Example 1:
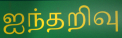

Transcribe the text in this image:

ஐந்தறிவு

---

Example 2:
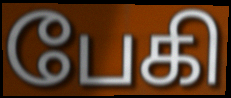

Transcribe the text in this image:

பேகி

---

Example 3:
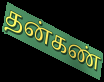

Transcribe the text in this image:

தன்கண்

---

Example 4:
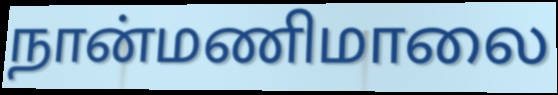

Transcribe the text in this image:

நான்மணிமாலை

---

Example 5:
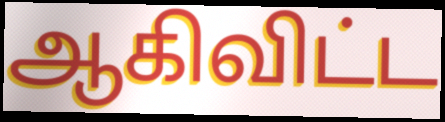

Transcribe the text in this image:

ஆகிவிட்ட